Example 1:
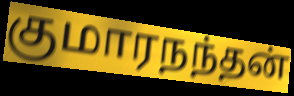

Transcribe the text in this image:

குமாரநந்தன்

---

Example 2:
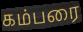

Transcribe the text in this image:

கம்பரை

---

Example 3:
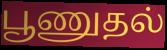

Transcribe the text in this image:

பூணுதல்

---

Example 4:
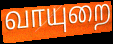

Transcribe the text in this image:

வாயுறை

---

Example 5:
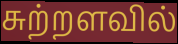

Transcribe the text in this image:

சுற்றளவில்